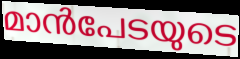
മാൻപേടയുടെ